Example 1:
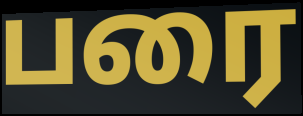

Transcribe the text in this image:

பரை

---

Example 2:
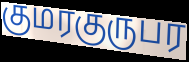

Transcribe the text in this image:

குமரகுருபர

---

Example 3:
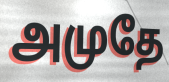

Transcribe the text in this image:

அமுதே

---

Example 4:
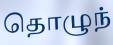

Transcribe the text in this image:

தொழுந்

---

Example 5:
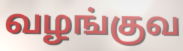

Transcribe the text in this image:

வழங்குவ